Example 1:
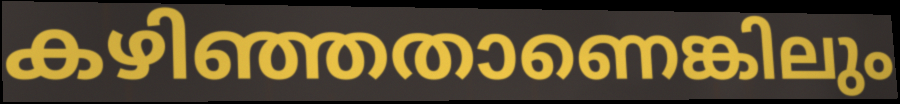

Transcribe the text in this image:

കഴിഞ്ഞതാണെങ്കിലും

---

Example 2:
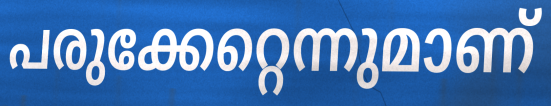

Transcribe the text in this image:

പരുക്കേറ്റെന്നുമാണ്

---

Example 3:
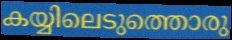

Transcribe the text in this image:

കയ്യിലെടുത്തൊരു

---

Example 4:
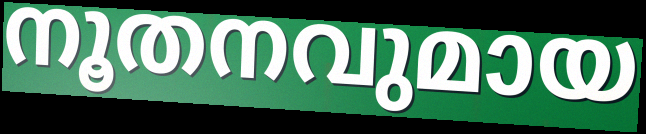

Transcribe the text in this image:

നൂതനവുമായ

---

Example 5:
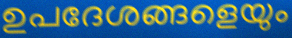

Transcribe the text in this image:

ഉപദേശങ്ങളെയും